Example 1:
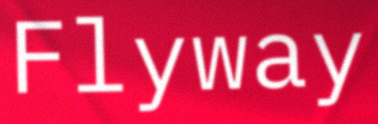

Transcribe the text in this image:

Flyway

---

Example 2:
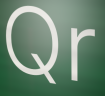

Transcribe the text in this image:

Qr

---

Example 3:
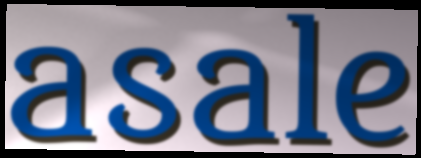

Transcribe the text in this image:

asale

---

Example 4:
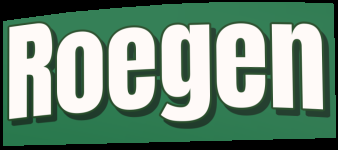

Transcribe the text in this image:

Roegen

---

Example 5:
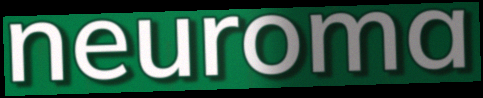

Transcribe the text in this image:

neuroma